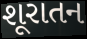
શૂરાતન